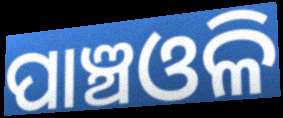
ପାଞ୍ଚଓଳି